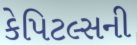
કેપિટલ્સની